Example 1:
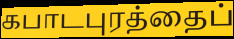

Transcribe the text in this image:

கபாடபுரத்தைப்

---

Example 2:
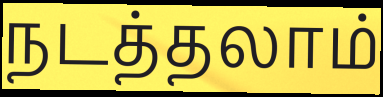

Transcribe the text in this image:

நடத்தலாம்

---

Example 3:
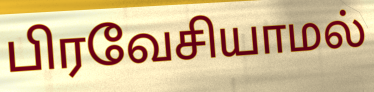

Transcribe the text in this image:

பிரவேசியாமல்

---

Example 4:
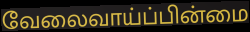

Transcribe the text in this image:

வேலைவாய்ப்பின்மை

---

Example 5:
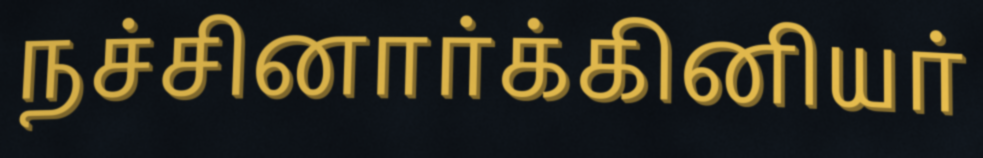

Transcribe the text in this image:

நச்சினார்க்கினியர்